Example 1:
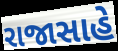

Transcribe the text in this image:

રાજાસાહે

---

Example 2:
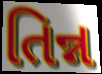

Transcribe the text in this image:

તિન્ન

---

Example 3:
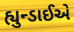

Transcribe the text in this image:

હ્યુન્ડાઈએ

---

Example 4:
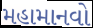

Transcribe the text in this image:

મહામાનવો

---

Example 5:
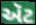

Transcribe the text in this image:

ઍટ